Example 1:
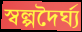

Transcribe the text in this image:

স্বল্পদৈর্ঘ্য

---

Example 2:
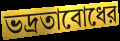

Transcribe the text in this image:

ভদ্রতাবোধের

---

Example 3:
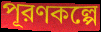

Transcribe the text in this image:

পূরণকল্পে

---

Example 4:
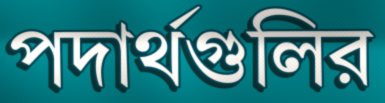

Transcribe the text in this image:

পদার্থগুলির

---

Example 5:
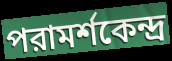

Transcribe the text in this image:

পরামর্শকেন্দ্র